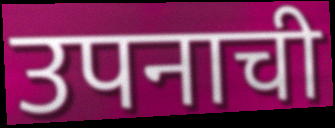
उपनाची